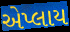
એપ્લાય